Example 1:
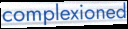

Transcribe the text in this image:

complexioned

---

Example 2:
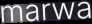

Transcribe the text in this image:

marwa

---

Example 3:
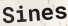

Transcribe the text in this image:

Sines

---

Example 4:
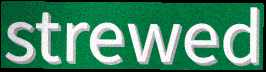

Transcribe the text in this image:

strewed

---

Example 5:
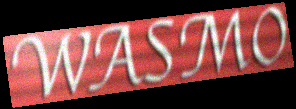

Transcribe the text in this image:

WASMO